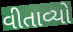
વીતાવ્યો